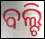
ବଲ୍ଟି